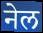
नेल